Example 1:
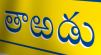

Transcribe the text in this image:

తాఱడు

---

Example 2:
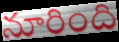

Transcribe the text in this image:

నూరింది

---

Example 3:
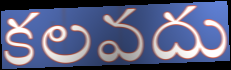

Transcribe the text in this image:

కలవదు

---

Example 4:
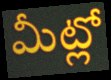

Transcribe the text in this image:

మీట్లో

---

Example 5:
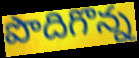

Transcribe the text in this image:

పొదిగొన్న